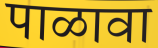
पाळावा